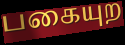
பகையுற